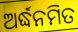
ଅର୍ଦ୍ଧନମିତ